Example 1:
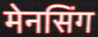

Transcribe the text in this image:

मेनसिंग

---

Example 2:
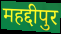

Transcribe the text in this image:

महद्दीपुर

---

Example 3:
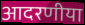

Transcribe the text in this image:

आदरणीया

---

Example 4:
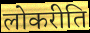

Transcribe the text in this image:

लोकरीति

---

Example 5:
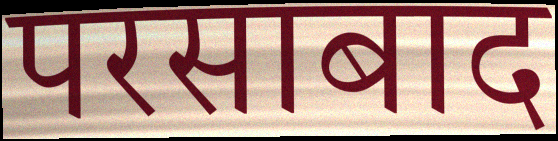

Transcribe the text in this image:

परसाबाद